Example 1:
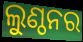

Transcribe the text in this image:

ଲୁଣ୍ଠନର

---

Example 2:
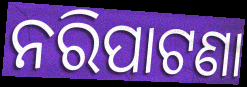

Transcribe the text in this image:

ନରିପାଟଣା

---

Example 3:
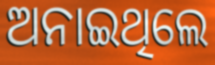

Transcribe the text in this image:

ଅନାଇଥିଲେ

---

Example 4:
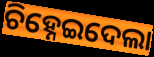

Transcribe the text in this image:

ଚିହ୍ନେଇଦେଲା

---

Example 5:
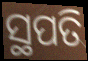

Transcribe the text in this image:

ସ୍ଥପତି